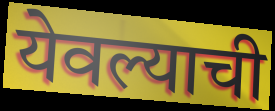
येवल्याची